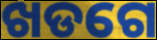
ଖଡଗେ